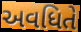
અવધિતે